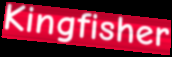
Kingfisher